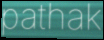
pathak